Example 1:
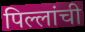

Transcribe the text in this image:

पिल्लांची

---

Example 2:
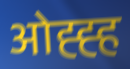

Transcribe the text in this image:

ओह्ह्ह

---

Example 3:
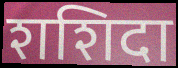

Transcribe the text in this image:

शशिदा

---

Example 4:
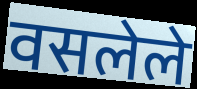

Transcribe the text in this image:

वसलेले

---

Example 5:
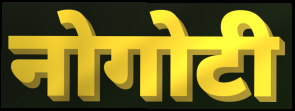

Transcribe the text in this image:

नोगोटी